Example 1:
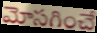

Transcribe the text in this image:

మోసగించే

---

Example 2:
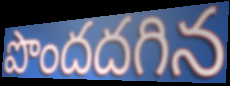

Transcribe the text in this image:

పొందదగిన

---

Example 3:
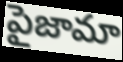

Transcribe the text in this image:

పైజామా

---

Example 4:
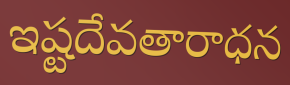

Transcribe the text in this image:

ఇష్టదేవతారాధన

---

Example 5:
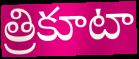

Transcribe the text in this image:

త్రికూటా